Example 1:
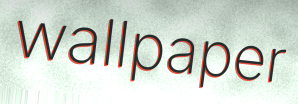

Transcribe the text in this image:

wallpaper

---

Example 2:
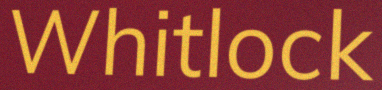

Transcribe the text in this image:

Whitlock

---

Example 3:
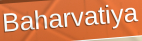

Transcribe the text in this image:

Baharvatiya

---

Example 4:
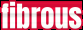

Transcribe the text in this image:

fibrous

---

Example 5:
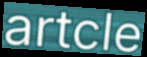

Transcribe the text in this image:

artcle